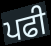
ਪਫੀ